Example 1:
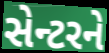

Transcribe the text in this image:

સેન્ટરને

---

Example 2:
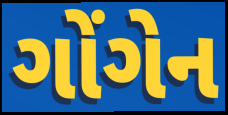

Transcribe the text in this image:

ગોંગેન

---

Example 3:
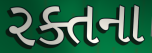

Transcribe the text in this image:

રક્તના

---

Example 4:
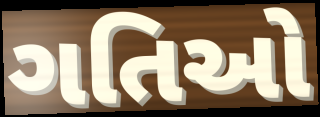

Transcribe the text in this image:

ગતિઓ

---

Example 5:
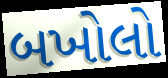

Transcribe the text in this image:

બખોલો